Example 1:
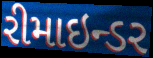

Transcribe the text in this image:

રીમાઇન્ડર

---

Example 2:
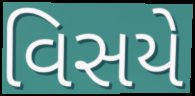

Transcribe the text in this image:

વિસયે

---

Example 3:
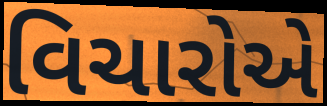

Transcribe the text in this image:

વિચારોએ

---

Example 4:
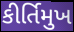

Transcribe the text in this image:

કીર્તિમુખ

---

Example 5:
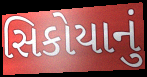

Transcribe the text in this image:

સિકોયાનું